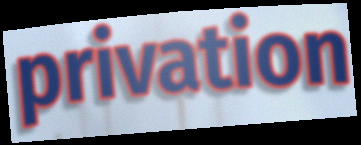
privation